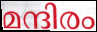
മന്ദിരം